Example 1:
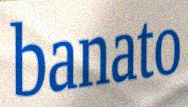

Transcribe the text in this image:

banato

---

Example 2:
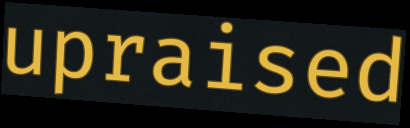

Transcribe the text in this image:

upraised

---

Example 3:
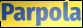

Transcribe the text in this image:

Parpola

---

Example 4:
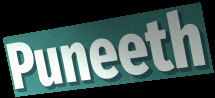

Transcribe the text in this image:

Puneeth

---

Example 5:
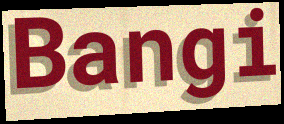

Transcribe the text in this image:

Bangi